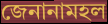
জেনানামহল